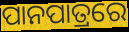
ପାନପାତ୍ରରେ